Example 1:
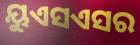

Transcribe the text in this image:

ୟୁଏସଏସର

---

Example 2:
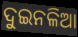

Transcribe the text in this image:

ଦୁଇନଳିଆ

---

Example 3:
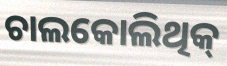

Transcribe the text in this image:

ଚାଲକୋଲିଥିକ୍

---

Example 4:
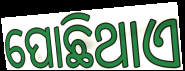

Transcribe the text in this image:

ପୋଛିଥାଏ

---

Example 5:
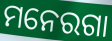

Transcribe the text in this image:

ମନେରଗା